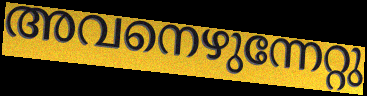
അവനെഴുന്നേറ്റു